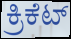
ಕ್ರಿಕೆಟ್